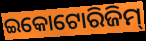
ଇକୋଟୋରିଜିମ୍